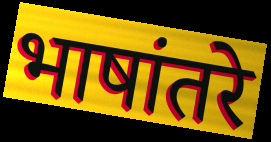
भाषांतरे